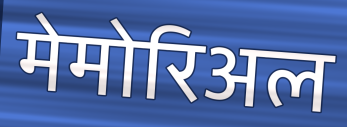
मेमोरिअल